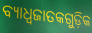
ବ୍ୟାଧ୍ଵଜାତକଗୁଡ଼ିକ